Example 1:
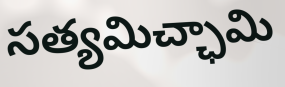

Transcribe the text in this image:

సత్యమిచ్ఛామి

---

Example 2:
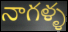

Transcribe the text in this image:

నాగళ్ళ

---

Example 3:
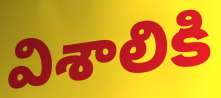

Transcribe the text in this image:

విశాలికి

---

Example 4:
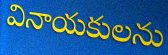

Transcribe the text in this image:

వినాయకులను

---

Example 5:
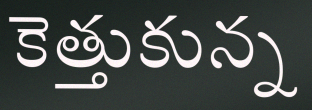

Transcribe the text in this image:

కెత్తుకున్న